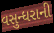
વસુન્ધરાની